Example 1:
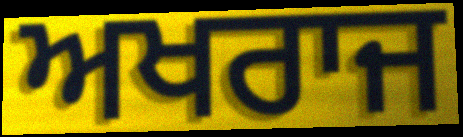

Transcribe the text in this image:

ਅਖਰਾਜ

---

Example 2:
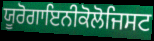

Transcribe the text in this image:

ਯੂਰੋਗਾਇਨੀਕੋਲੋਜਿਸਟ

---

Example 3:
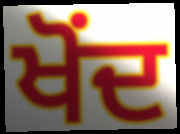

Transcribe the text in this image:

ਖੋਂਦ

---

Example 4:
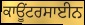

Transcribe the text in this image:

ਕਾਊਂਟਰਸਾਈਨ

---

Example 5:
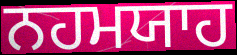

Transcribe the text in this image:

ਨਹਮਯਾਹ